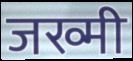
जख्मी